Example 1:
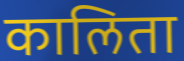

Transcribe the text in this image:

कालिता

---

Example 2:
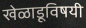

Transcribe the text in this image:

खेळाडूविषयी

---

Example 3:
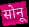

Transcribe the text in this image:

सोनू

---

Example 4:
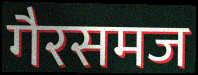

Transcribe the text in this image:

गैरसमज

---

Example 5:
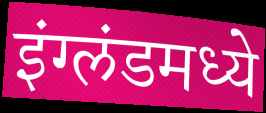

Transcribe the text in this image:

इंग्लंडमध्ये